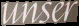
unser